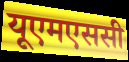
यूएमएससी